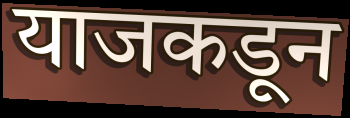
याजकडून